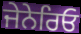
ਜੇਨੇਰਿਓ